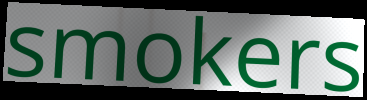
smokers